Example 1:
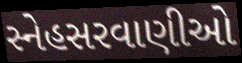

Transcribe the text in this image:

સ્નેહસરવાણીઓ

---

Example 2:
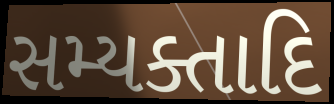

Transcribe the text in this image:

સમ્યક્તાદિ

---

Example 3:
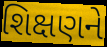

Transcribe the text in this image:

શિક્ષણને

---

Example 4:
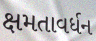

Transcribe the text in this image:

ક્ષમતાવર્ધન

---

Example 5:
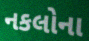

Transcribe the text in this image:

નકલોના